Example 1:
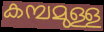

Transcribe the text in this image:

കമ്പമുള്ള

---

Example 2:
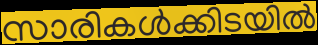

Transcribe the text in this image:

സാരികൾക്കിടയിൽ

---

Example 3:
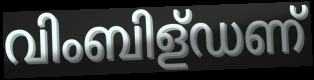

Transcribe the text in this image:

വിംബിള്ഡണ്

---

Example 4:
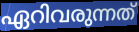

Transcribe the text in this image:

ഏറിവരുന്നത്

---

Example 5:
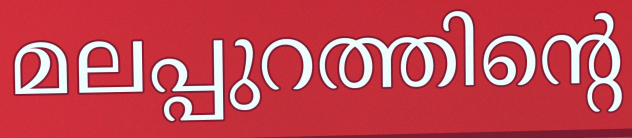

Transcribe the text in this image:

മലപ്പുറത്തിന്റെ